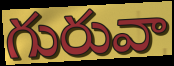
గురువా